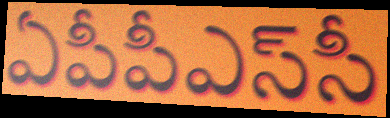
ఏపీపీఎస్‌సీ